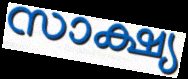
സാക്ഷ്യ